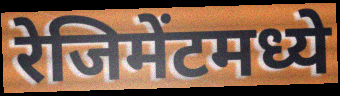
रेजिमेंटमध्ये